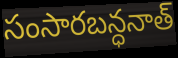
సంసారబన్ధనాత్